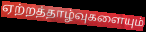
ஏற்றத்தாழ்வுகளையும்